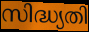
സിദ്ധ്യതി